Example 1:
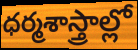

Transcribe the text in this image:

ధర్మశాస్త్రాల్లో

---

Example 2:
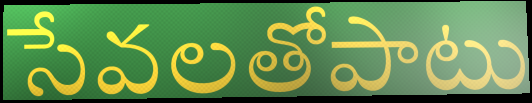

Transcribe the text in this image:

సేవలతోపాటు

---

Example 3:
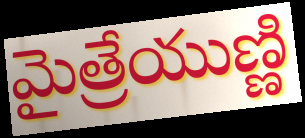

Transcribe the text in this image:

మైత్రేయుణ్ణి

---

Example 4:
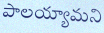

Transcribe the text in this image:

పాలయ్యామని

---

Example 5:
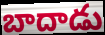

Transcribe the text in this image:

బాదాడు